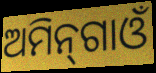
ଅମିନ୍‌ଗାଓଁ